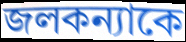
জলকন্যাকে